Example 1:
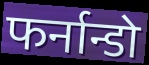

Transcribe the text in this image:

फर्नान्डो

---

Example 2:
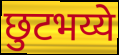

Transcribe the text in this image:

छुटभय्ये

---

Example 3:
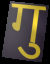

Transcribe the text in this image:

गु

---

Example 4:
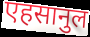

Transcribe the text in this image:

एहसानुल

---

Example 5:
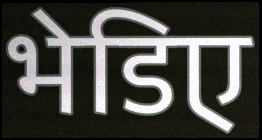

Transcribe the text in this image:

भेडिए